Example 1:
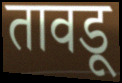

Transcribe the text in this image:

तावडू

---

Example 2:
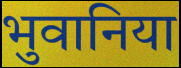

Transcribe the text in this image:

भुवानिया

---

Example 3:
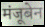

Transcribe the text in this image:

मंजूबेन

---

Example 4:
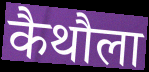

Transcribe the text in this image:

कैथौला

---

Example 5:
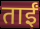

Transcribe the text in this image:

ताईं